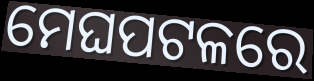
ମେଘପଟଳରେ